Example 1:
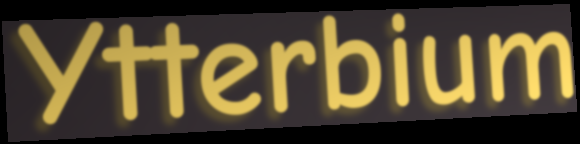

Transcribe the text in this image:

Ytterbium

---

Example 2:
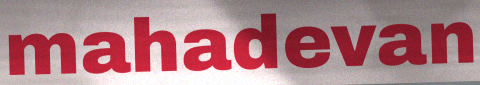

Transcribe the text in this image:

mahadevan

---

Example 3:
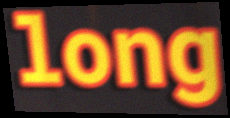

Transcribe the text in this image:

long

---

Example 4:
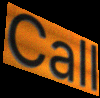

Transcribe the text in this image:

Call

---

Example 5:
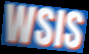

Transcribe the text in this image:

WSIS